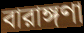
বারাঙ্গণা